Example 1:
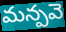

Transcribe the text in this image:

మన్పవె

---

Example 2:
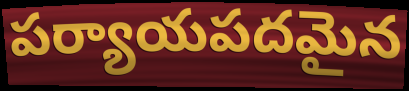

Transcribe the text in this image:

పర్యాయపదమైన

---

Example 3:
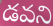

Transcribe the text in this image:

డవని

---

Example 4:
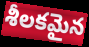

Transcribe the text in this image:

శీలకమైన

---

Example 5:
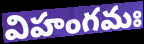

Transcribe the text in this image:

విహంగమః